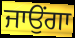
ਜਾਉਂਗਾ